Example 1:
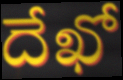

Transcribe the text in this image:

దేఖో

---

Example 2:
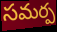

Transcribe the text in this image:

సమర్ప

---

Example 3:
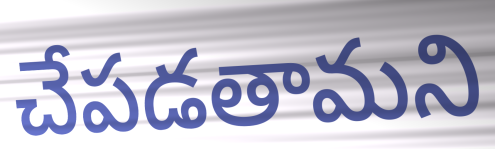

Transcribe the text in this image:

చేపడతామని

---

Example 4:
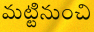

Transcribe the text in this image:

మట్టినుంచి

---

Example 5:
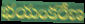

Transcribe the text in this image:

భయంకరేణ